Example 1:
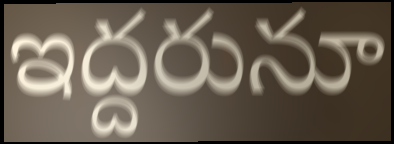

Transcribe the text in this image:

ఇద్దరునూ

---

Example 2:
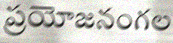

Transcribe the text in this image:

ప్రయోజనంగల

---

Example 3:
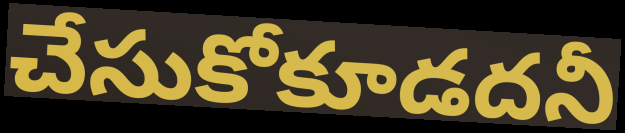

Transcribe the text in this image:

చేసుకోకూడదనీ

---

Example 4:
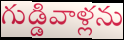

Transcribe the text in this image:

గుడ్డివాళ్లను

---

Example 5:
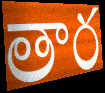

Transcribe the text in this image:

తార